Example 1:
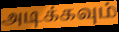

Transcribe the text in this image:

அடிக்கவும்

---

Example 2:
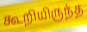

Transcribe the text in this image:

கூறியிருந்த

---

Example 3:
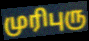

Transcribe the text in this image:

முரிபுரு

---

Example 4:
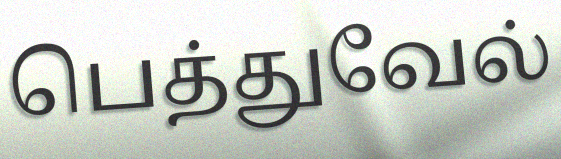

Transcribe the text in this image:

பெத்துவேல்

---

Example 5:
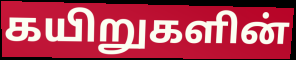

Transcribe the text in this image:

கயிறுகளின்